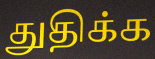
துதிக்க